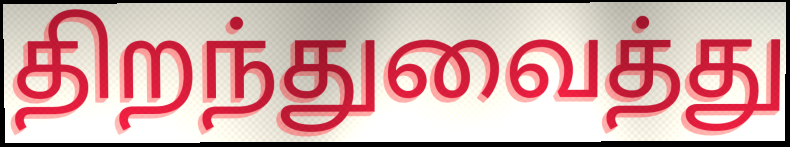
திறந்துவைத்து